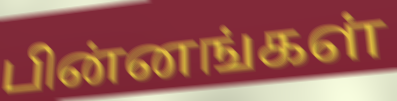
பின்னங்கள்